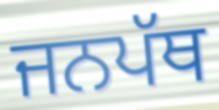
ਜਨਪੱਥ